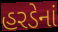
હરડેનાં